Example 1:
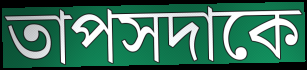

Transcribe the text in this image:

তাপসদাকে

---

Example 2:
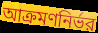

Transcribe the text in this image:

আক্রমণনির্ভর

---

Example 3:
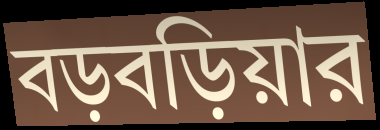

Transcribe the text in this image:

বড়বড়িয়ার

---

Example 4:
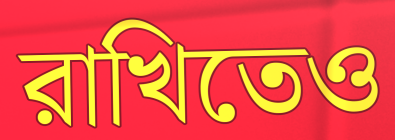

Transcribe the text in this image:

রাখিতেও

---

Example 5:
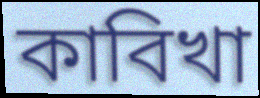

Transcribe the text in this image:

কাবিখা